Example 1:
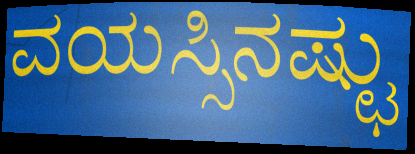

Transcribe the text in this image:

ವಯಸ್ಸಿನಷ್ಟು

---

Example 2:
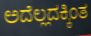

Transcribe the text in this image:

ಅದೆಲ್ಲದಕ್ಕಿಂತ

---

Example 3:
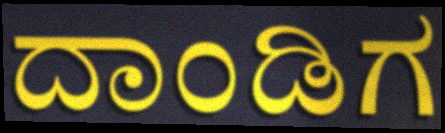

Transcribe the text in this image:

ದಾಂಡಿಗ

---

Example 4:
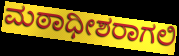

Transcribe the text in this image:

ಮಠಾಧೀಶರಾಗಲಿ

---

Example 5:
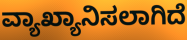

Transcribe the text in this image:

ವ್ಯಾಖ್ಯಾನಿಸಲಾಗಿದೆ